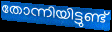
തോന്നിയിട്ടുണ്ട്